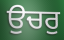
ਉਚਰੁ